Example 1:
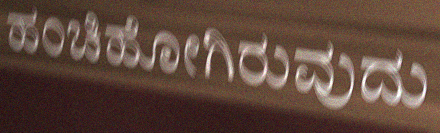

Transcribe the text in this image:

ಹಂಚಿಹೋಗಿರುವುದು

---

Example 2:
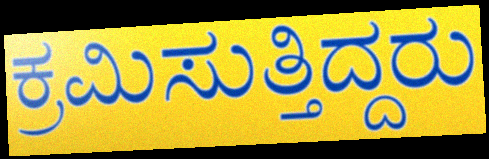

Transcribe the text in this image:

ಕ್ರಮಿಸುತ್ತಿದ್ದರು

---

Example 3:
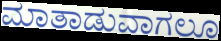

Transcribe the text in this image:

ಮಾತಾಡುವಾಗಲೂ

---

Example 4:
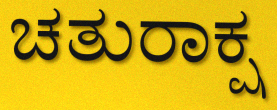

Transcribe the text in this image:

ಚತುರಾಕ್ಷ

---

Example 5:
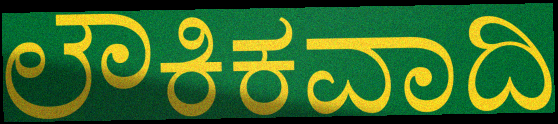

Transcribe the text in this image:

ಲೌಕಿಕವಾದಿ